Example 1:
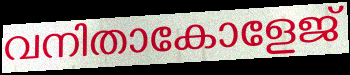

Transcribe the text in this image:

വനിതാകോളേജ്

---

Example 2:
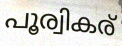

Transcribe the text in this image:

പൂര്വികര്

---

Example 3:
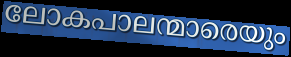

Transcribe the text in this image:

ലോകപാലന്മാരെയും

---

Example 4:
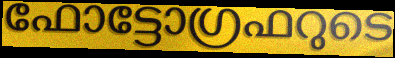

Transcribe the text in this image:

ഫോട്ടോഗ്രഫറുടെ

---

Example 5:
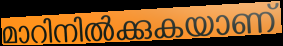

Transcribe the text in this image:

മാറിനിൽക്കുകയാണ്